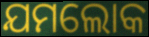
ଯମଲୋକ